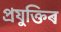
প্ৰযুক্তিৰ